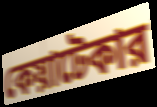
কেয়াটেকার